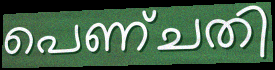
പെണ്ചതി